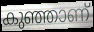
കുഞ്ഞാണ്